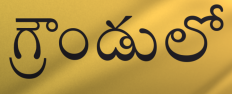
గ్రౌండులో